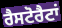
ਰੈਸਟੋਰੈਟਾਂ